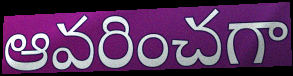
ఆవరించగా